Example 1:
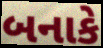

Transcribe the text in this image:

બનાકે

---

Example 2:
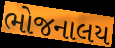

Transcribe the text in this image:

ભોજનાલય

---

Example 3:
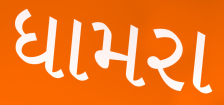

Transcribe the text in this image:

ધામરા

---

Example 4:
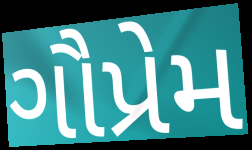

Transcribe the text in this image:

ગૌપ્રેમ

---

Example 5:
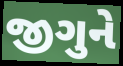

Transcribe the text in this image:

જીગુને